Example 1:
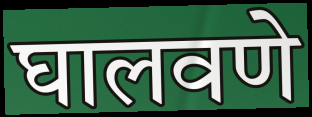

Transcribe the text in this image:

घालवणे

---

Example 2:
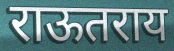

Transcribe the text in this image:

राऊतराय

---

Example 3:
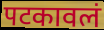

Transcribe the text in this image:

पटकावलं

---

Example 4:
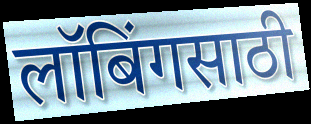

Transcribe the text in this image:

लॉबिंगसाठी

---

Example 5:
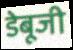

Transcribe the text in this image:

डेबूजी